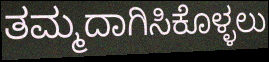
ತಮ್ಮದಾಗಿಸಿಕೊಳ್ಳಲು